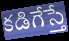
కడిగేస్తే